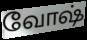
வோஷ்